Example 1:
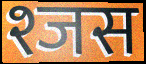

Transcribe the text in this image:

श्जस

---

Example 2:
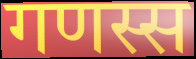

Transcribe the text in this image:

गणस्स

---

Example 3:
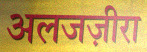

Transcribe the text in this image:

अलजज़ीरा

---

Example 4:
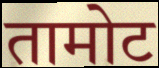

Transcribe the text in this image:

तामोट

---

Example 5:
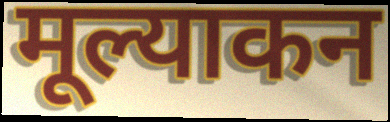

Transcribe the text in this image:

मूल्याकन